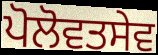
ਪੋਲੋਵਤਸੇਵ